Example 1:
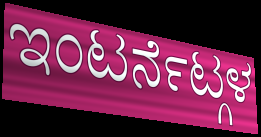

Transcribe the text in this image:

ಇಂಟರ್ನೆಟ್ಗಳ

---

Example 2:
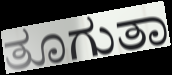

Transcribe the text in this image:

ತೂಗುತಾ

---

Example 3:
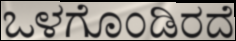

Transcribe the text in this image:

ಒಳಗೊಂಡಿರದೆ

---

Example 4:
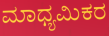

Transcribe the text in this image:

ಮಾಧ್ಯಮಿಕರ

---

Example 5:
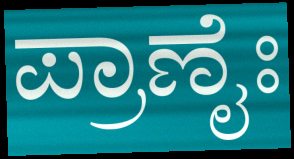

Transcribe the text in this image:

ಪ್ರಾಣೈಃ